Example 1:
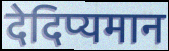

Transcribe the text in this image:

देदिप्यमान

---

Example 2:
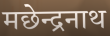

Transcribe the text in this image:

मछेन्द्रनाथ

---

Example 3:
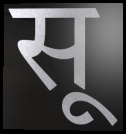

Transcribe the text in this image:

सू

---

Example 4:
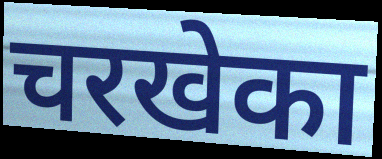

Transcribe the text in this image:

चरखेका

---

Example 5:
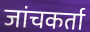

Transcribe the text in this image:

जांचकर्ता